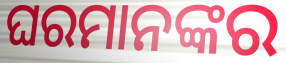
ଘରମାନଙ୍କର